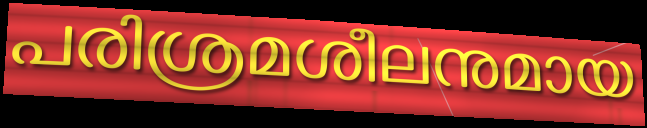
പരിശ്രമശീലനുമായ